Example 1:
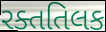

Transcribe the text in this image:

રક્તતિલક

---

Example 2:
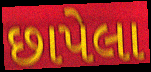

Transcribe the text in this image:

છાપેલા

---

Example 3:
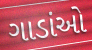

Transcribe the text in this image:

ગાડાંઓ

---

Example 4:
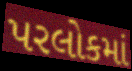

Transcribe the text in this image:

પરલોકમાં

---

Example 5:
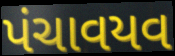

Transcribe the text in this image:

પંચાવયવ